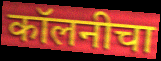
कॉलनीचा